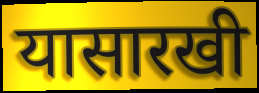
यासारखी